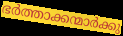
ഭർത്താക്കന്മാർക്കു